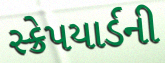
સ્ક્રેપયાર્ડની